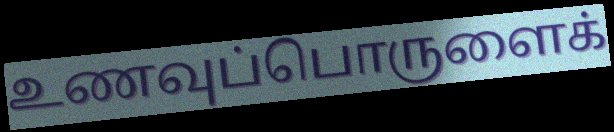
உணவுப்பொருளைக்